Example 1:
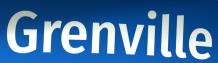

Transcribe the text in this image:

Grenville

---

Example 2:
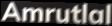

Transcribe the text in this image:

Amrutlal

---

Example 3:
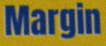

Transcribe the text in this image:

Margin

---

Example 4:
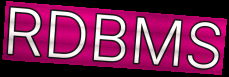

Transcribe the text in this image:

RDBMS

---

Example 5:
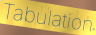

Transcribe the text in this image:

Tabulation